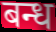
बन्ध